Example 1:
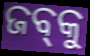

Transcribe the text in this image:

ଜବ୍‍କୁ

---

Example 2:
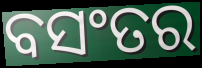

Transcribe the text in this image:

ବସଂତର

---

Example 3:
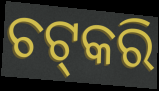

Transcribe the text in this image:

ଚଟ୍‌କରି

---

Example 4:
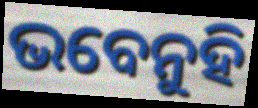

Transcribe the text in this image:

ଭବେନୁହି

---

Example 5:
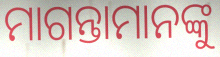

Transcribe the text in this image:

ମାଗନ୍ତାମାନଙ୍କୁ